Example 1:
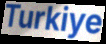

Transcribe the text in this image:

Turkiye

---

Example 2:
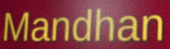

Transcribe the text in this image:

Mandhan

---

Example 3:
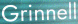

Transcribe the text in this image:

Grinnell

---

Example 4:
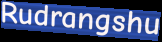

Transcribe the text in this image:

Rudrangshu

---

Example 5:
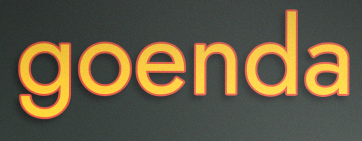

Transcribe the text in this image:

goenda